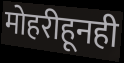
मोहरीहूनही